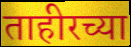
ताहीरच्या